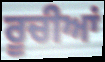
ਰੂਚੀਆਂ